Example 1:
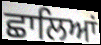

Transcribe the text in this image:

ਛਾਲਿਆਂ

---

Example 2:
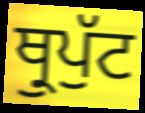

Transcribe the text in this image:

ਥ੍ਰੁਪੁੱਟ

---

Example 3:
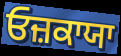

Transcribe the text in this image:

ਓਜ਼ਕਾਯਾ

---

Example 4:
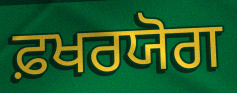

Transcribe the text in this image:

ਫ਼ਖਰਯੋਗ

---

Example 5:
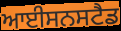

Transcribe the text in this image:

ਆਈਸਨਸਟੈਡ